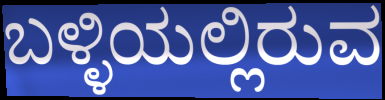
ಬಳ್ಳಿಯಲ್ಲಿರುವ